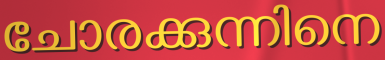
ചോരക്കുന്നിനെ